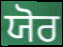
ਯੋਰ